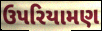
ઉપરિયામણ